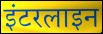
इंटरलाइन